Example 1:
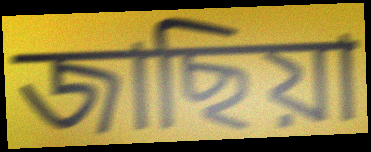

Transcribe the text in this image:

জাছিয়া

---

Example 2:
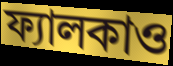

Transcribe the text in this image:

ফ্যালকাও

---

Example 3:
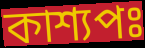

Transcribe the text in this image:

কাশ্যপঃ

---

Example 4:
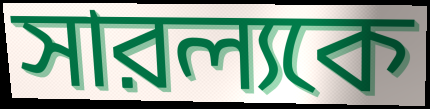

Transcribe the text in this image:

সারল্যকে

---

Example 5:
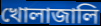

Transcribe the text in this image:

খোলাজালি